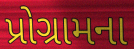
પ્રોગ્રામના